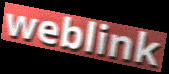
weblink